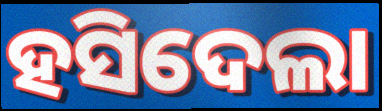
ହସିଦେଲା